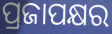
ପ୍ରଜାପକ୍ଷର